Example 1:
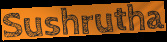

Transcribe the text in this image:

Sushrutha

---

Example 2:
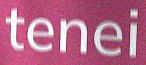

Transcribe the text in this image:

tenei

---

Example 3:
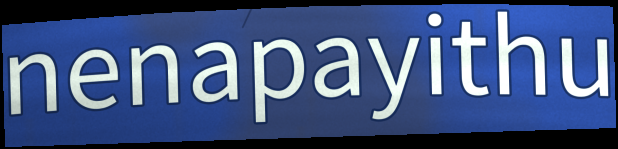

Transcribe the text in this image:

nenapayithu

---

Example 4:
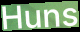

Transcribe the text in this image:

Huns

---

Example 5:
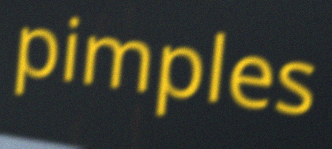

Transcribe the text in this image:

pimples